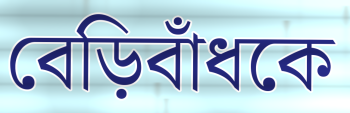
বেড়িবাঁধকে